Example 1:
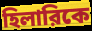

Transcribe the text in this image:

হিলারিকে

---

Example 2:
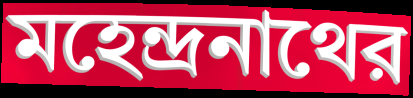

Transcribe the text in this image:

মহেন্দ্রনাথের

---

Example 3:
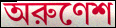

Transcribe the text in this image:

অরুণেশ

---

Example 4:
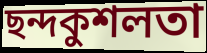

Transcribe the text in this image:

ছন্দকুশলতা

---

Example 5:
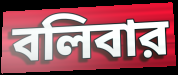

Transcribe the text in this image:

বলিবার